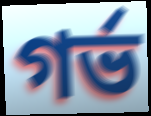
গর্ভ